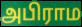
அபிராம